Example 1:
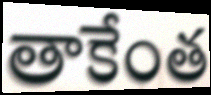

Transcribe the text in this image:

తాకేంత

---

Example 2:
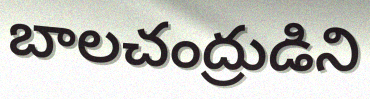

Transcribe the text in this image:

బాలచంద్రుడిని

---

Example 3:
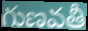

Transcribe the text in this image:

గుణవతీ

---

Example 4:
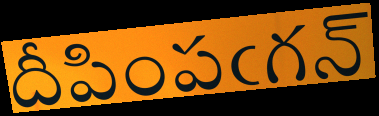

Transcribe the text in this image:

దీపింపఁగన్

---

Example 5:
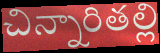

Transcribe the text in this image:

చిన్నారితల్లి